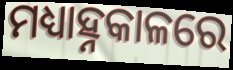
ମଧ୍ୟାହ୍ନକାଳରେ